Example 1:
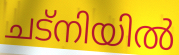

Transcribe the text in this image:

ചട്നിയിൽ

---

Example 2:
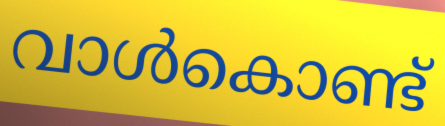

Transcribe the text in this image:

വാൾകൊണ്ട്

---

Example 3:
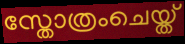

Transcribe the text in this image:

സ്തോത്രംചെയ്ത്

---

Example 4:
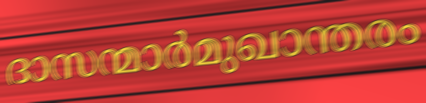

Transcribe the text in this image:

ദാസന്മാർമുഖാന്തരം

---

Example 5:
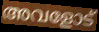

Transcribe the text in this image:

അവളോട്